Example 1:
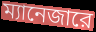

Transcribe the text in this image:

ম্যানেজারে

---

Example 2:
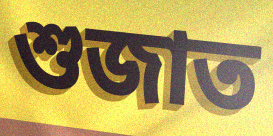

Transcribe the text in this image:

শুজাত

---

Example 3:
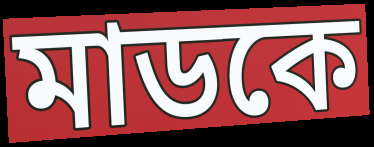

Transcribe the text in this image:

মাডকে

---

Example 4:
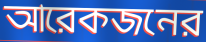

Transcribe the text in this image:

আরেকজনের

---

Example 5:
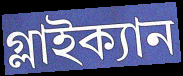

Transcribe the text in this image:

গ্লাইক্যান